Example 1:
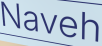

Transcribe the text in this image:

Naveh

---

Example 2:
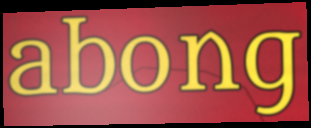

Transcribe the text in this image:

abong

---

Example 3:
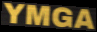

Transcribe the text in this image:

YMGA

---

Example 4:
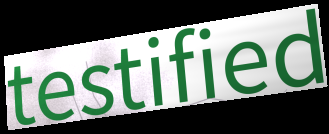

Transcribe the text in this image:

testified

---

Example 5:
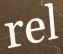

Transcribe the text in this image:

rel